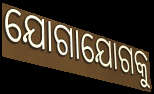
ଯୋଗାଯୋଗକୁ